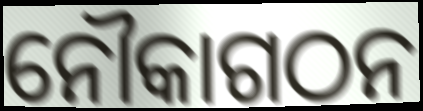
ନୌକାଗଠନ